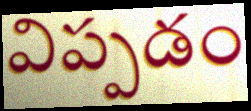
విప్పడం